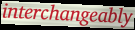
interchangeably